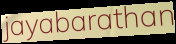
jayabarathan